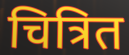
चित्रित